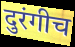
दुरंगीच